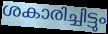
ശകാരിച്ചിട്ടും